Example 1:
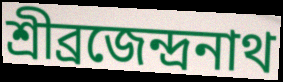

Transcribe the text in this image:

শ্রীব্রজেন্দ্রনাথ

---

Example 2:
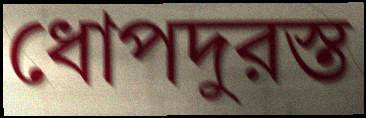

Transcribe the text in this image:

ধোপদুরস্ত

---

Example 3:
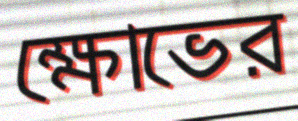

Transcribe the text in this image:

ক্ষোভের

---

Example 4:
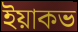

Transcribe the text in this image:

ইয়াকভ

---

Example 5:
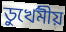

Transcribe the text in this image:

ডুর্খেমীয়